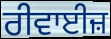
ਰੀਵਾਈਜ਼